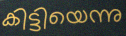
കിട്ടിയെന്നു